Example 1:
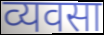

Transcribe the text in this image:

व्यवसा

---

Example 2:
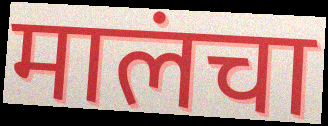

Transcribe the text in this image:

मालंचा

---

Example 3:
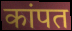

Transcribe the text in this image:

कांपत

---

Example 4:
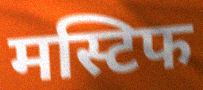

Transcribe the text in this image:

मस्टिफ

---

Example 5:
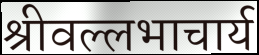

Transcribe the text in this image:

श्रीवल्लभाचार्य